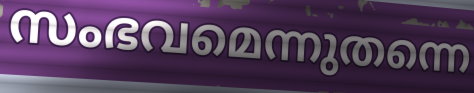
സംഭവമെന്നുതന്നെ